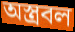
অস্ত্রবল